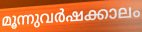
മൂന്നുവർഷക്കാലം